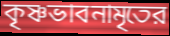
কৃষ্ণভাবনামৃতের